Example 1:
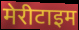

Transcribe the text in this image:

मेरीटाइम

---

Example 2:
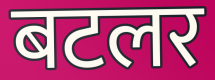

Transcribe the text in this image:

बटलर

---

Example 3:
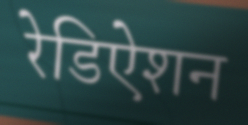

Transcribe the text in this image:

रेडिऐशन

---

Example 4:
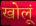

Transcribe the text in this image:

खोलूं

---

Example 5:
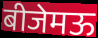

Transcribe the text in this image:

बीजेमऊ